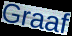
Graaf